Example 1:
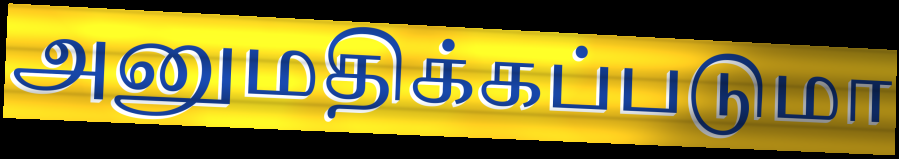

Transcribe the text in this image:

அனுமதிக்கப்படுமா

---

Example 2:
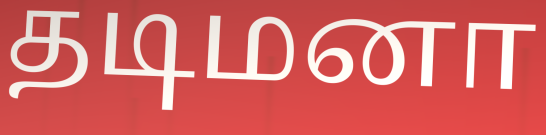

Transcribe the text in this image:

தடிமனா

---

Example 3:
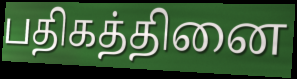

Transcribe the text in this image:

பதிகத்தினை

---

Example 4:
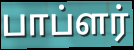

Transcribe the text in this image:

பாப்ளர்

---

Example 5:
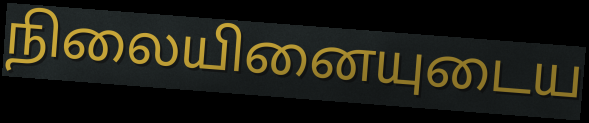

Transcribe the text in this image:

நிலையினையுடைய